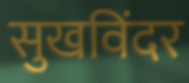
सुखविंदर